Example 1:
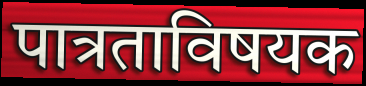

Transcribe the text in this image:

पात्रताविषयक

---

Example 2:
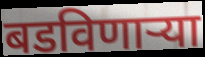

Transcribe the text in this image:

बडविणाऱ्या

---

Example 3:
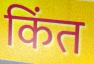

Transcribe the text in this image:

किंत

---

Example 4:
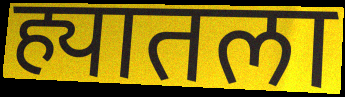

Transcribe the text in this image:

ह्यातला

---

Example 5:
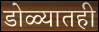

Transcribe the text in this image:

डोळ्यातही